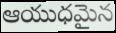
ఆయుధమైన